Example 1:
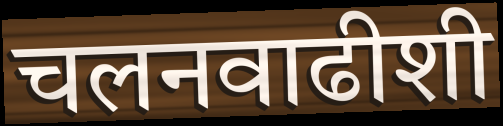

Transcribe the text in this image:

चलनवाढीशी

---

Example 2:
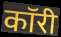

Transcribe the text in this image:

कॉरी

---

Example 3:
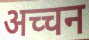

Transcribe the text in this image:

अच्चन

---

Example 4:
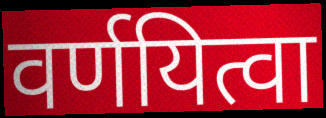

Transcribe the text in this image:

वर्णयित्वा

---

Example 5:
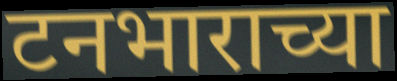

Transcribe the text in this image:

टनभाराच्या